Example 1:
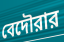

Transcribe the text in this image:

বেদৌরার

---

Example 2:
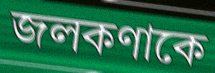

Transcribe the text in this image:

জলকণাকে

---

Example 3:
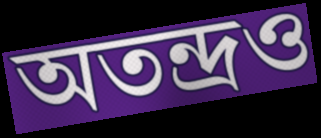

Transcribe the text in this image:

অতন্দ্রও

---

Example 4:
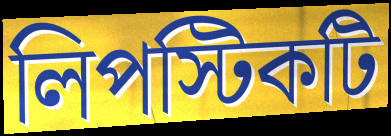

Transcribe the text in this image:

লিপস্টিকটি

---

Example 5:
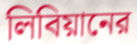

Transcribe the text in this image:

লিবিয়ানের